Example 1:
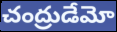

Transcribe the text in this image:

చంద్రుడేమో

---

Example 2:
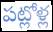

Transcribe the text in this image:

పట్లోళ్ల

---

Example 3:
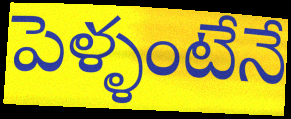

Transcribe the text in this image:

పెళ్ళంటేనే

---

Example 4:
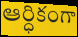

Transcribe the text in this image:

ఆర్ధికంగా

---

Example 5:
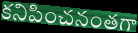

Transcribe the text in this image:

కనిపించనంతగా